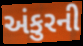
અંકુરની